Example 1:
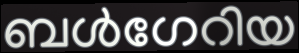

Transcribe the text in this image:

ബൾഗേറിയ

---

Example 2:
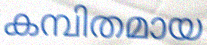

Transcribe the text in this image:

കമ്പിതമായ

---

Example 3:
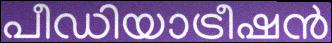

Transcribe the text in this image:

പീഡിയാട്രീഷൻ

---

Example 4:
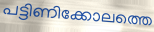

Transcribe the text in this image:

പട്ടിണിക്കോലത്തെ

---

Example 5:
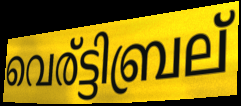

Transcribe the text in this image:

വെര്ട്ടിബ്രല്